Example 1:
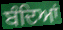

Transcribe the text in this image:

ਬੰਦਿਆਂ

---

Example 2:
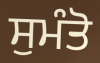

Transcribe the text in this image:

ਸੁਮੰਤੋ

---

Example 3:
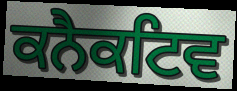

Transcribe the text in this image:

ਕਨੈਕਟਿਵ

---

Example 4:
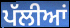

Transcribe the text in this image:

ਪੱਲੀਆਂ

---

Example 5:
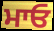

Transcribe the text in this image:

ਮਾਓ